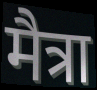
मैत्रा